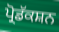
ਪ੍ਰੋਡੱਕਸ਼ਨ